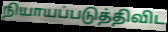
நியாயப்படுத்திவிட